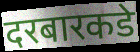
दरबारकडे